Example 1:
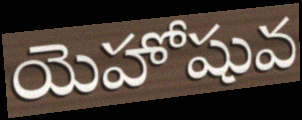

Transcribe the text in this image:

యెహోషువ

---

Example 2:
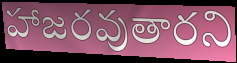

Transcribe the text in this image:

హాజరవుతారని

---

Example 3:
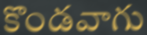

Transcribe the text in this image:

కొండవాగు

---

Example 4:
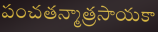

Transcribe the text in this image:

పంచతన్మాత్రసాయకా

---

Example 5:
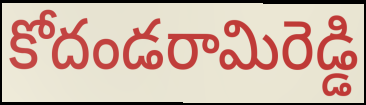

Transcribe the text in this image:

కోదండరామిరెడ్డి